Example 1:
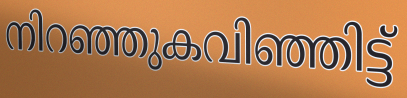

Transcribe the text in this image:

നിറഞ്ഞുകവിഞ്ഞിട്ട്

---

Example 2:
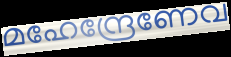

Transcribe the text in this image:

മഹേന്ദ്രേണേവ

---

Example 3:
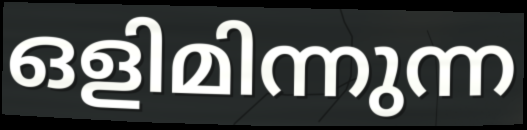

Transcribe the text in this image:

ഒളിമിന്നുന്ന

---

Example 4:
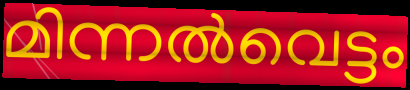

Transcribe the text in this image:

മിന്നൽവെട്ടം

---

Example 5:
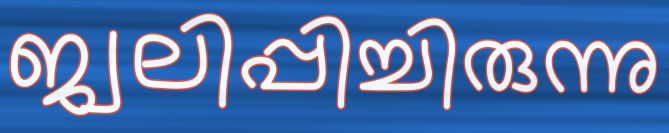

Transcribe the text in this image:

ജ്വലിപ്പിച്ചിരുന്നു